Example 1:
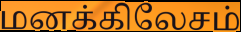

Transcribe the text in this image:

மனக்கிலேசம்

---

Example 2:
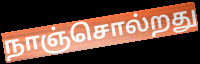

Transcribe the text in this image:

நாஞ்சொல்றது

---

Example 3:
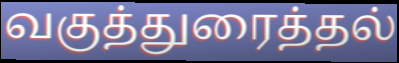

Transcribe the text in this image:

வகுத்துரைத்தல்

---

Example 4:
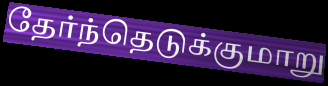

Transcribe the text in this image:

தேர்ந்தெடுக்குமாறு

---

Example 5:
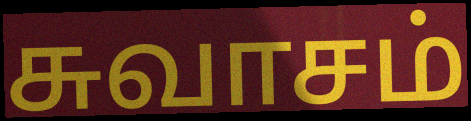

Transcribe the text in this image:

சுவாசம்